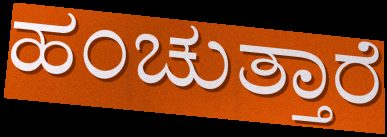
ಹಂಚುತ್ತಾರೆ